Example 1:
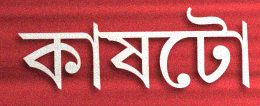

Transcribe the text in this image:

কাষটো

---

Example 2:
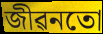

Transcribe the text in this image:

জীৱনতো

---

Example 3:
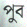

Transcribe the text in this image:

পুব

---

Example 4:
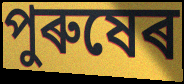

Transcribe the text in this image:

পুৰুষেৰ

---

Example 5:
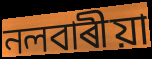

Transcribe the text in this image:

নলবাৰীয়া